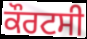
ਕੌਰਟਸੀ